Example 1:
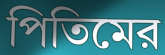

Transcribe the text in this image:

পিতিমের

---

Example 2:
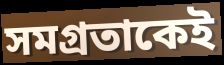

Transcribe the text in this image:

সমগ্রতাকেই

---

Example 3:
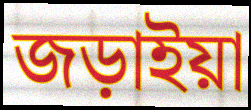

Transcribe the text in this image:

জড়াইয়া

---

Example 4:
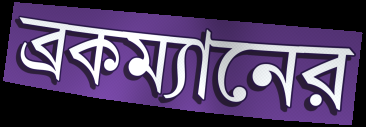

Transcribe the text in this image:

ব্রকম্যানের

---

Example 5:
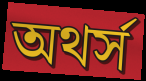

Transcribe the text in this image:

অথর্স